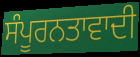
ਸੰਪੂਰਨਤਾਵਾਦੀ